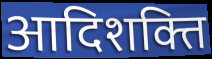
आदिशक्ति